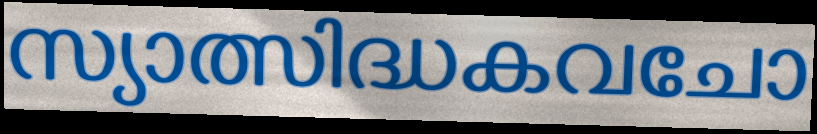
സ്യാത്സിദ്ധകവചോ